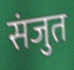
संजुत